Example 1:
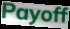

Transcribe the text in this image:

Payoff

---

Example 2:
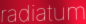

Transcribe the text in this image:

radiatum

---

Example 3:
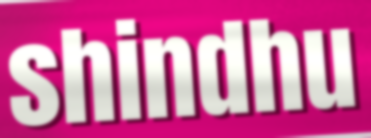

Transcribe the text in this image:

shindhu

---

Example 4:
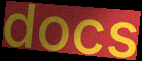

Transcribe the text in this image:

docs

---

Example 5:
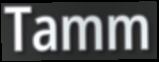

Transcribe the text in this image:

Tamm